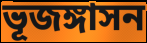
ভূজঙ্গাসন